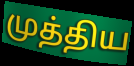
முத்திய